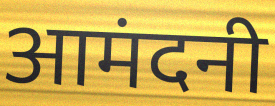
आमंदनी